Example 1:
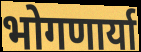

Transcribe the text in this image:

भोगणार्या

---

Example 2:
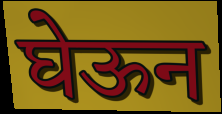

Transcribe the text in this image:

घेऊन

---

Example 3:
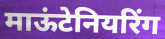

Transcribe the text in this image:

माऊंटेनियरिंग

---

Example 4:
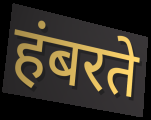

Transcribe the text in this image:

हंबरते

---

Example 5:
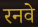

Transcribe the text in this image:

रनवे